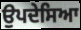
ਉਪਦੇਸਿਆ